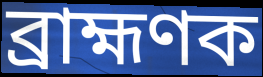
ব্ৰাহ্মণক